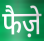
फैज़े